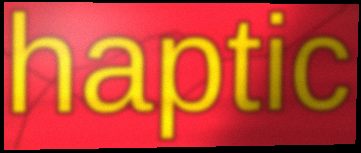
haptic